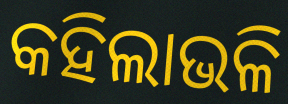
କହିଲାଭଳି